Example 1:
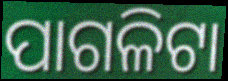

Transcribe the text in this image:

ପାଗଳିଟା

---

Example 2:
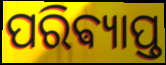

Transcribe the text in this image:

ପରିଵ୍ୟାପ୍ତ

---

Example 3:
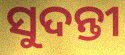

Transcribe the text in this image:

ସୁଦନ୍ତୀ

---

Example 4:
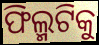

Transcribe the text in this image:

ଫିଲ୍ମଟିକୁ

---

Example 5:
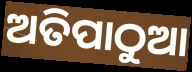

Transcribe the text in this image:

ଅତିପାଠୁଆ